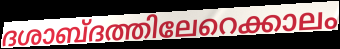
ദശാബ്ദത്തിലേറെക്കാലം